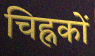
चिह्नकों